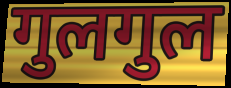
गुलगुल